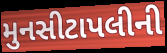
મુનસીટાપલીની